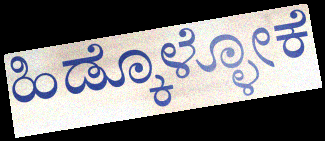
ಹಿಡ್ಕೊಳ್ಳೋಕೆ